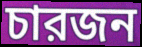
চারজন